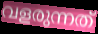
വളരുന്നത്